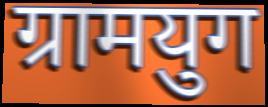
ग्रामयुग